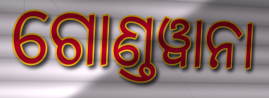
ଗୋଣ୍ଡୱାନା